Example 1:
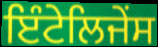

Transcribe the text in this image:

ਇੰਟੇਲਿਜੇਂਸ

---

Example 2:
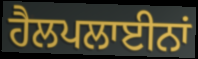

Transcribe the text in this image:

ਹੈਲਪਲਾਈਨਾਂ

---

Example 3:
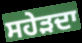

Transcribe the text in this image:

ਸਹੇੜਦਾ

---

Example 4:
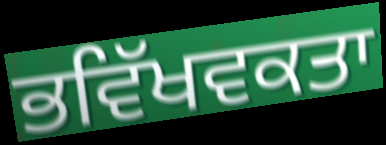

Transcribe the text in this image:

ਭਵਿੱਖਵਕਤਾ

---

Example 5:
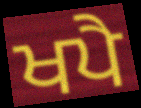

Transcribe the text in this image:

ਖਪੈ